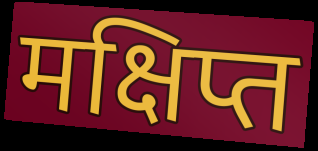
मक्षिप्त